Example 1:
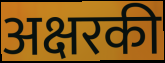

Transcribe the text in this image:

अक्षरकी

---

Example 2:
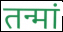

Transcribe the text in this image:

तन्मां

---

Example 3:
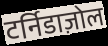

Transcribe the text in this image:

टर्निडाज़ोल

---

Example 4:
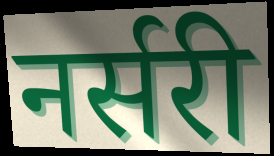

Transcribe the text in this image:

नर्सरी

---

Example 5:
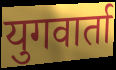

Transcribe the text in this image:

युगवार्ता